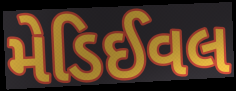
મેડિઈવલ